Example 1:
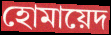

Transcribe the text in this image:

হোমায়েদ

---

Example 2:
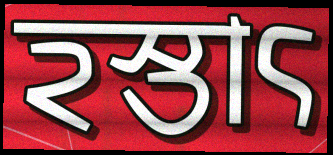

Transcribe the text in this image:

হস্তাৎ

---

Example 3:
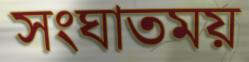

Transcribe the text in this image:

সংঘাতময়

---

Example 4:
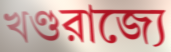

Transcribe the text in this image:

খণ্ডরাজ্যে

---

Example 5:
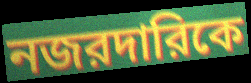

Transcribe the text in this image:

নজরদারিকে